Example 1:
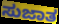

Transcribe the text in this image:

ಸುಜಾತ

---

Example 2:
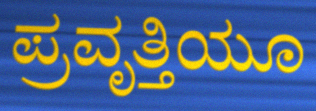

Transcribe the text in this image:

ಪ್ರವೃತ್ತಿಯೂ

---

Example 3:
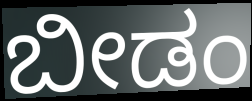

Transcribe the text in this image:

ಬೀಡಂ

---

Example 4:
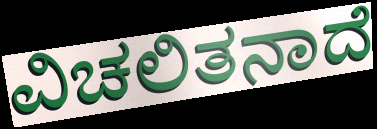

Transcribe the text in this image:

ವಿಚಲಿತನಾದೆ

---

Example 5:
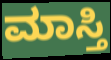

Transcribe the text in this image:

ಮಾಸ್ತಿ